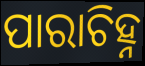
ପାରାଚିହ୍ନ